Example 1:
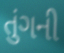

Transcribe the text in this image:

તુંગની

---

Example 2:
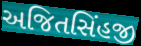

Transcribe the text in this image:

અજિતસિંહજી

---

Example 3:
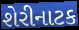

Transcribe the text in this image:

શેરીનાટક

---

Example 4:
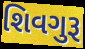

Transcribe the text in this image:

શિવગુરૂ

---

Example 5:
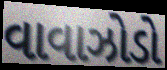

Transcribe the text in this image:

વાવાઝોડો